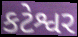
કટેશ્વર